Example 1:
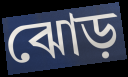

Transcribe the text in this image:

ঝোড়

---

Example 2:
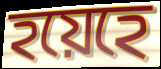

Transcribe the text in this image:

হয়েহে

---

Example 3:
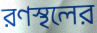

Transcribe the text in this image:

রণস্থলের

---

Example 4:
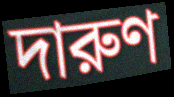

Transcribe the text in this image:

দারুণ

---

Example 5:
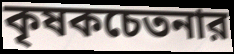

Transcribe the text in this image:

কৃষকচেতনার